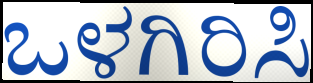
ಒಳಗಿರಿಸಿ